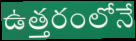
ఉత్తరంలోనే